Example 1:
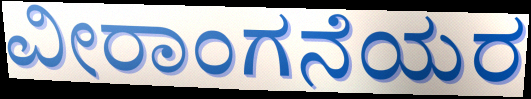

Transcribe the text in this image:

ವೀರಾಂಗನೆಯರ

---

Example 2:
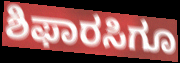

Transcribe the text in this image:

ಶಿಫಾರಸಿಗೂ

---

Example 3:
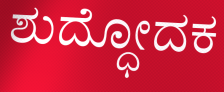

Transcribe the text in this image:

ಶುದ್ಧೋದಕ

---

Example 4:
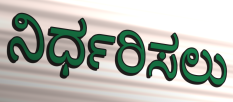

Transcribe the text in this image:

ನಿರ್ಧರಿಸಲು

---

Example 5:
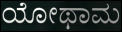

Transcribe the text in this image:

ಯೋಥಾಮ